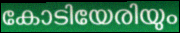
കോടിയേരിയും